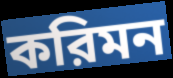
করিমন